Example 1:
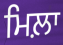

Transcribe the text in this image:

ਮਿਲ਼ਾ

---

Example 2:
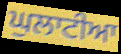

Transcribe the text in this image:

ਘੁਲਾਟੀਆ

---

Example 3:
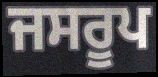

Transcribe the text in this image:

ਜਸਰੂਪ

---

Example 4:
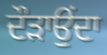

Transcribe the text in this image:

ਦੌੜਾਉਂਦਾ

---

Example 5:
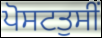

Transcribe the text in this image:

ਪੋਸਟਤੁਸੀਂ